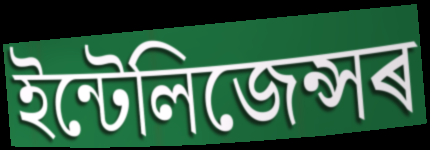
ইন্টেলিজেন্সৰ